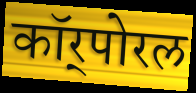
कॉर्पोरल